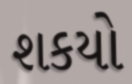
શકયો